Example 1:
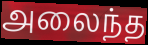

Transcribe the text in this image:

அலைந்த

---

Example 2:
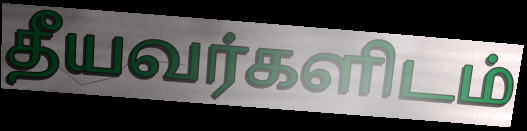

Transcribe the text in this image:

தீயவர்களிடம்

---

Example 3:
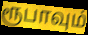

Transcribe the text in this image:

ரூபாவும்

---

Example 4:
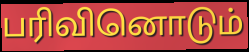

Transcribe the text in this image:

பரிவினொடும்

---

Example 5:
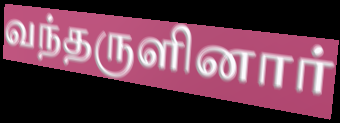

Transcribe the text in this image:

வந்தருளினார்